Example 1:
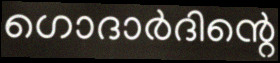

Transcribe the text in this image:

ഗൊദാർദിന്റെ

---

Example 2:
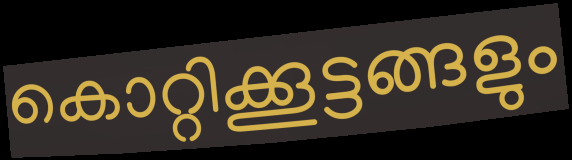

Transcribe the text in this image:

കൊറ്റിക്കൂട്ടങ്ങളും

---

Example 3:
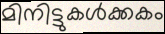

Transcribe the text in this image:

മിനിട്ടുകൾക്കകം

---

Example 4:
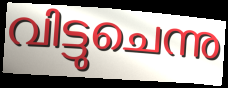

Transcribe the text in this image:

വിട്ടുചെന്നു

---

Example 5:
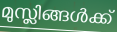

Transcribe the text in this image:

മുസ്ലിങ്ങൾക്ക്